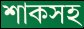
শাকসহ